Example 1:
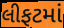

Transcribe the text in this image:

લીફટમાં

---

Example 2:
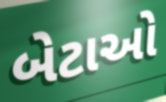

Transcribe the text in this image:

બેટાઓ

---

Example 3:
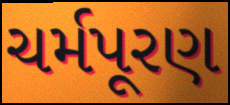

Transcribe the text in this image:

ચર્મપૂરણ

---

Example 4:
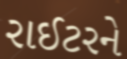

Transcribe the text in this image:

રાઈટરને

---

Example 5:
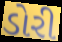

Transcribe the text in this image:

ડોરી